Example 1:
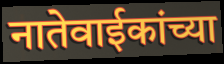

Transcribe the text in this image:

नातेवाईकांच्या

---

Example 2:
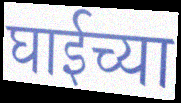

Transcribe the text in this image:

घाईच्या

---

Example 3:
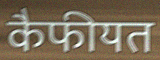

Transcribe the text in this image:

कैफीयत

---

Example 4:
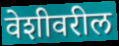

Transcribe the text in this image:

वेशीवरील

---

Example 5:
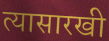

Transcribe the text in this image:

त्यासारखी